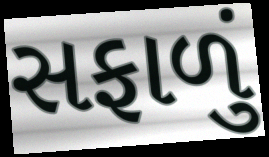
સફાળું